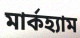
মার্কহ্যাম